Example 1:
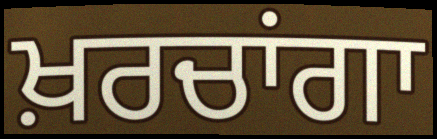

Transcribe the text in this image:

ਖ਼ਰਚਾਂਗਾ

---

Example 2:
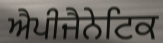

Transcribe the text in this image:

ਐਪੀਜੈਨੇਟਿਕ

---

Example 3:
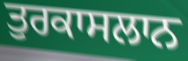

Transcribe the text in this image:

ਤੁਰਕਾਸਲਾਨ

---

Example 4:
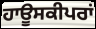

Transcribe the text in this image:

ਹਾਊਸਕੀਪਰਾਂ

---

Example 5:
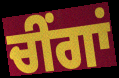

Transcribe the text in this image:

ਚੀਂਗਾਂ